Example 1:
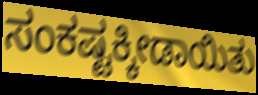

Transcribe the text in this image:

ಸಂಕಷ್ಟಕ್ಕೀಡಾಯಿತು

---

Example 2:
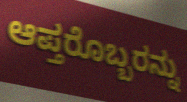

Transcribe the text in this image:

ಆಪ್ತರೊಬ್ಬರನ್ನು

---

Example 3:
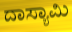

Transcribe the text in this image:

ದಾಸ್ಯಾಮಿ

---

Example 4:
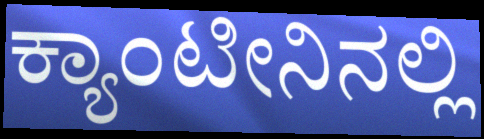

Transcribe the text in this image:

ಕ್ಯಾಂಟೀನಿನಲ್ಲಿ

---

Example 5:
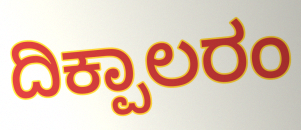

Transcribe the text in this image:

ದಿಕ್ಪಾಲರಂ